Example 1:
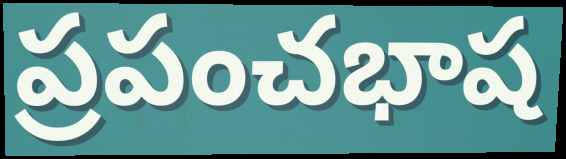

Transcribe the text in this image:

ప్రపంచభాష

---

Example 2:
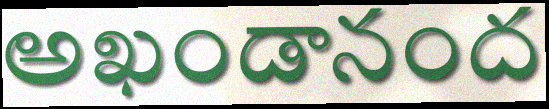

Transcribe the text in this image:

అఖండానంద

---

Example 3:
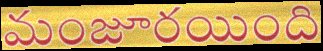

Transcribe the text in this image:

మంజూరయింది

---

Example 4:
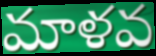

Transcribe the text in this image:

మాళవ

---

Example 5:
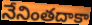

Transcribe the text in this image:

నేనింతదాకా